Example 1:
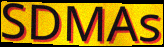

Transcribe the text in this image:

SDMAs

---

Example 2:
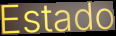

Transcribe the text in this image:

Estado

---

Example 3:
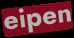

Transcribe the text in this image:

eipen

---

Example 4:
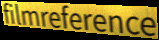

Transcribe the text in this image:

filmreference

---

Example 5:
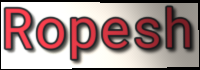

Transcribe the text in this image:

Ropesh